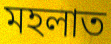
মহলাত